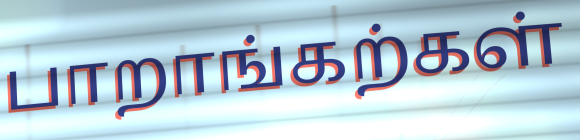
பாறாங்கற்கள்